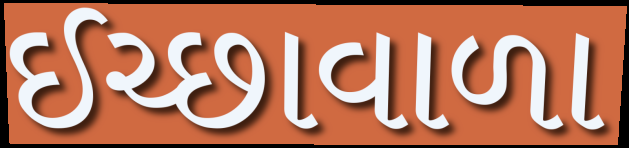
ઈચ્છાવાળા